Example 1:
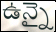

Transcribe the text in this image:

ఉన్నై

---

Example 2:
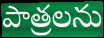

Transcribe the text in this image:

పాత్రలను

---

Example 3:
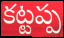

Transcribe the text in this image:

కట్టప్ప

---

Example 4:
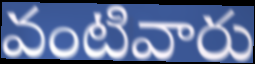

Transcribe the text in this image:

వంటివారు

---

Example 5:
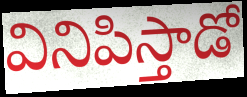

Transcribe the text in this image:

వినిపిస్తాడో